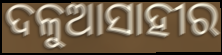
ଦଳୁଆସାହୀର